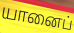
யானைப்